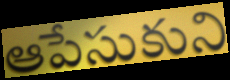
ఆపేసుకుని